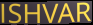
ISHVAR